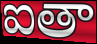
ఐతా